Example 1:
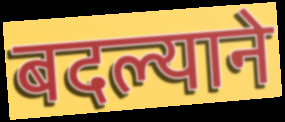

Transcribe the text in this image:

बदल्याने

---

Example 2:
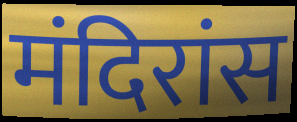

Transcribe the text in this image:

मंदिरांस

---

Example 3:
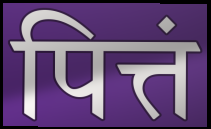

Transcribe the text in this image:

पित्तं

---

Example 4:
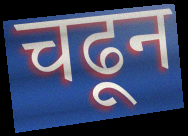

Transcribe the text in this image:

चढून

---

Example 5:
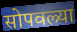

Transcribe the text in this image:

सोपवल्या